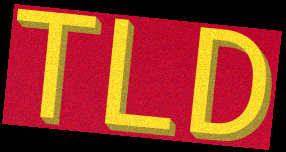
TLD